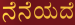
ನೆನೆಯದೆ